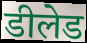
डीलेड